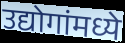
उद्योगांमध्ये